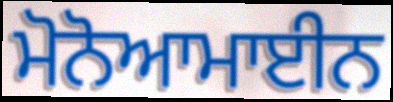
ਮੋਨੋਆਮਾਈਨ